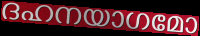
ദഹനയാഗമോ